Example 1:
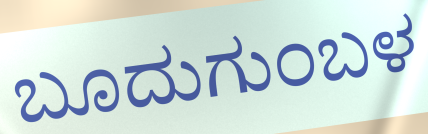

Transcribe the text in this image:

ಬೂದುಗುಂಬಳ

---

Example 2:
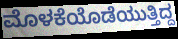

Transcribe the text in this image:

ಮೊಳಕೆಯೊಡೆಯುತ್ತಿದ್ದ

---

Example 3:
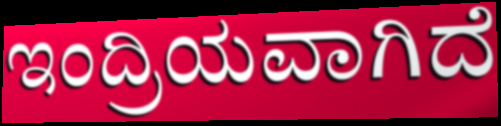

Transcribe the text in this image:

ಇಂದ್ರಿಯವಾಗಿದೆ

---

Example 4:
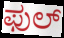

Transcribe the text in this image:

ಫುಲ್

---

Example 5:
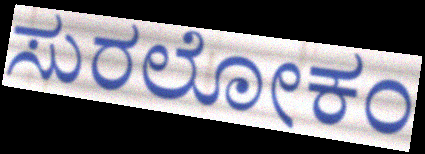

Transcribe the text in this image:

ಸುರಲೋಕಂ